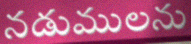
నడుములను